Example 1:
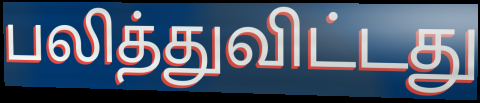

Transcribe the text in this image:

பலித்துவிட்டது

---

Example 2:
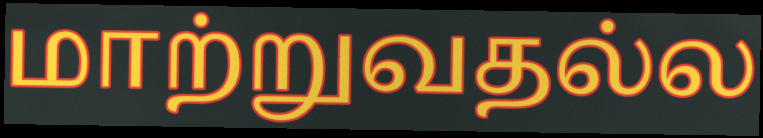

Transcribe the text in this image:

மாற்றுவதல்ல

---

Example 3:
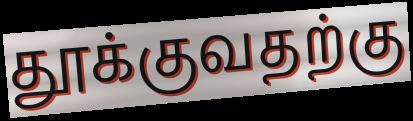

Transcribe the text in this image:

தூக்குவதற்கு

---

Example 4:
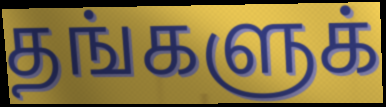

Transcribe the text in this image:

தங்களுக்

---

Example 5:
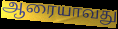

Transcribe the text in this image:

ஆரையாவது